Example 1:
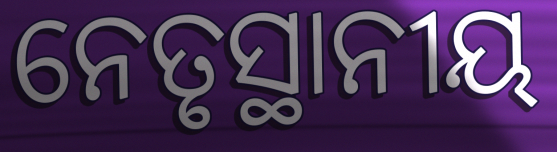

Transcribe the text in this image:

ନେତୃସ୍ଥାନୀୟ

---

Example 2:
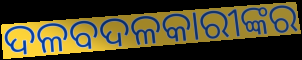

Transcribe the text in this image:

ଦଳବଦଳକାରୀଙ୍କର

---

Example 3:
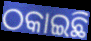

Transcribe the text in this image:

ଠକାଇଛି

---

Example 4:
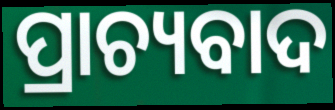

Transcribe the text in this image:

ପ୍ରାଚ୍ୟବାଦ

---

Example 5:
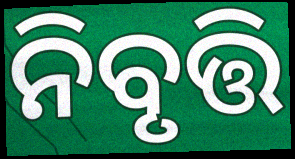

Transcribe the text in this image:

ନିବୃତ୍ତି